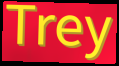
Trey